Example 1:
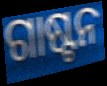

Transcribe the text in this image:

ଗାଷ୍ଟନ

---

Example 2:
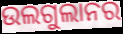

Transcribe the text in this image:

ଉଲଗୁଲାନର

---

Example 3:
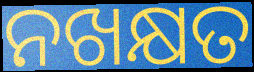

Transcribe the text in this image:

ନଖକ୍ଷତ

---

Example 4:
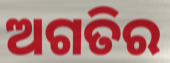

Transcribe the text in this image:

ଅଗତିର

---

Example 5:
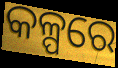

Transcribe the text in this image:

କଳ୍ପରେ